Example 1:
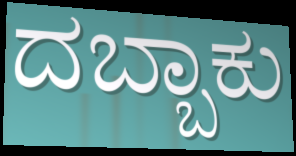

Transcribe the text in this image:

ದಬ್ಬಾಕು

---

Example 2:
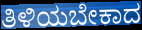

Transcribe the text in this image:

ತಿಳಿಯಬೇಕಾದ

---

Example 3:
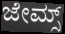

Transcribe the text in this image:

ಜೇಮ್ಸ್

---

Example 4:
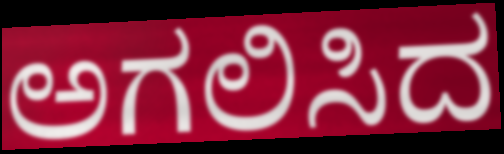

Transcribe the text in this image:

ಅಗಲಿಸಿದ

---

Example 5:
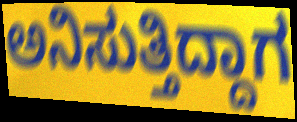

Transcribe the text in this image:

ಅನಿಸುತ್ತಿದ್ದಾಗ